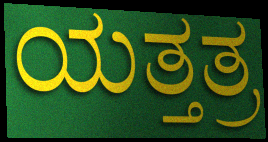
ಯತ್ತತ್ರ